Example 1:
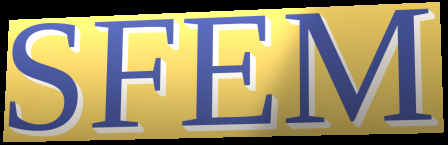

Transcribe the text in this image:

SFEM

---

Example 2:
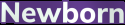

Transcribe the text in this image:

Newborn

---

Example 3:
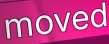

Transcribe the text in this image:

moved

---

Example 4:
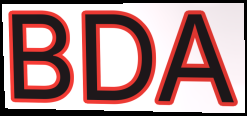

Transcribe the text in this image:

BDA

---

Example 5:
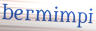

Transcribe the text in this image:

bermimpi